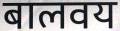
बालवय